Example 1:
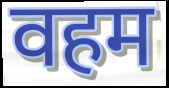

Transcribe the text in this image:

वहम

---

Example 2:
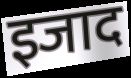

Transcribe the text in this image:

इजाद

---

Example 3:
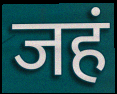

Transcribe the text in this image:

जहं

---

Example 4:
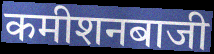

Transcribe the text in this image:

कमीशनबाजी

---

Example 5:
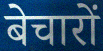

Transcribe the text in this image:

बेचारों